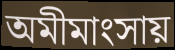
অমীমাংসায়